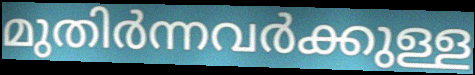
മുതിർന്നവർക്കുള്ള